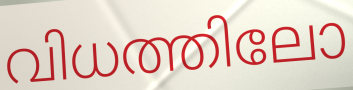
വിധത്തിലോ